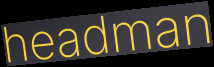
headman